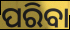
ପରିବା